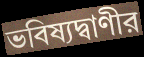
ভবিষ্যদ্বাণীর